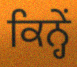
ਕਿਨ੍ਹੇਂ